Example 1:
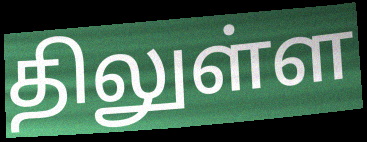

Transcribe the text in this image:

திலுள்ள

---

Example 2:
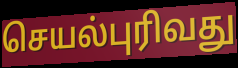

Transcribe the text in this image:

செயல்புரிவது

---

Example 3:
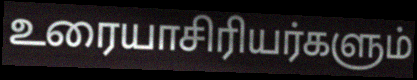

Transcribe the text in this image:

உரையாசிரியர்களும்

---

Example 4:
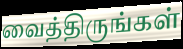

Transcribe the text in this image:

வைத்திருங்கள்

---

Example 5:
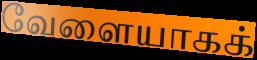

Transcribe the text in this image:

வேளையாகக்